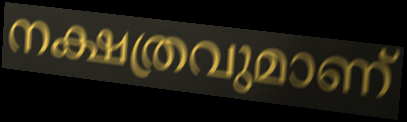
നക്ഷത്രവുമാണ്